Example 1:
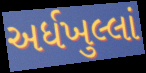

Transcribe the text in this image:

અર્ધખુલ્લાં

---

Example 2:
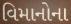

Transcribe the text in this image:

વિમાનોના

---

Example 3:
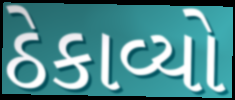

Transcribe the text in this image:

ઠેકાવ્યો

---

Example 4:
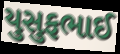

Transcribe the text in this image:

યુસુફભાઈ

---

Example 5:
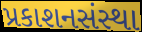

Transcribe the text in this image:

પ્રકાશનસંસ્થા